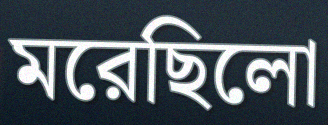
মরেছিলো